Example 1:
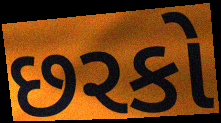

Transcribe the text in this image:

છરકો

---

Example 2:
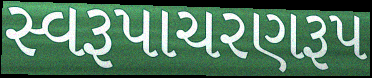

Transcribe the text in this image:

સ્વરૂપાચરણરૂપ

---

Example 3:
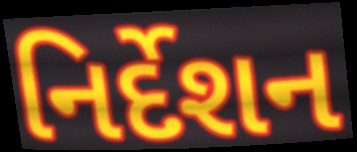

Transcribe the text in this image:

નિર્દેશન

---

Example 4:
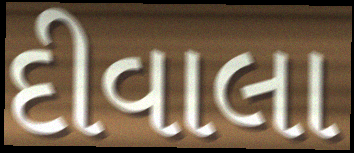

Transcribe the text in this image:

દીવાલા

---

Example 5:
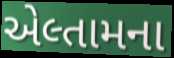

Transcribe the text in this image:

એલ્તામના